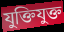
যুক্তিযুক্ত